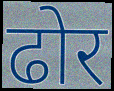
ढोर